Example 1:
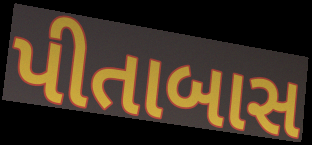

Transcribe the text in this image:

પીતાબાસ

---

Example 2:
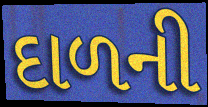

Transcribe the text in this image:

દાળની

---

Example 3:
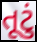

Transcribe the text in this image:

તૂટું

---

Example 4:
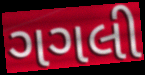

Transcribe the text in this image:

ગગલી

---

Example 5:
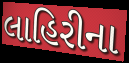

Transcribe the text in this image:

લાહિરીના